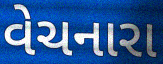
વેચનારા